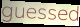
guessed